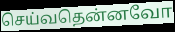
செய்வதென்னவோ